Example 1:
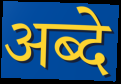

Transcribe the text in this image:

अब्दे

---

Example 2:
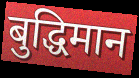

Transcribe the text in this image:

बुद्धिमान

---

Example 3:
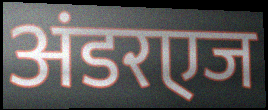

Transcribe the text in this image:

अंडरएज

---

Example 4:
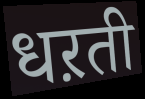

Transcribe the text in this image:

धऱती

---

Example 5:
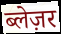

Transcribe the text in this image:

ब्लेज़र